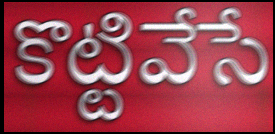
కొట్టివేసే